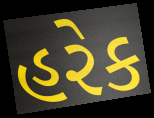
હરેક